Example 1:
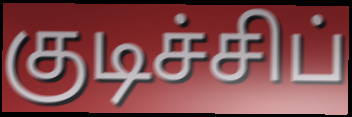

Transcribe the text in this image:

குடிச்சிப்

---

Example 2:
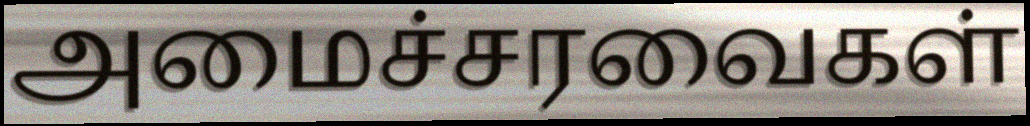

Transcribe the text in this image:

அமைச்சரவைகள்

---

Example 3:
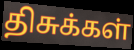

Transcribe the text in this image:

திசுக்கள்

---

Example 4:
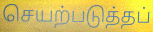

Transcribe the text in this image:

செயற்படுத்தப்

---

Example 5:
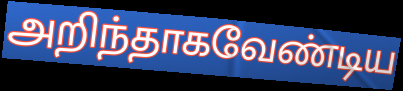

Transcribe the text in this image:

அறிந்தாகவேண்டிய